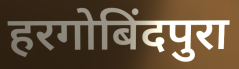
हरगोबिंदपुरा